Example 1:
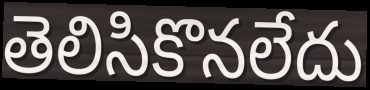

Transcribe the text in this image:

తెలిసికొనలేదు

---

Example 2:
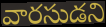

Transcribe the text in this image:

వారసుడని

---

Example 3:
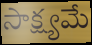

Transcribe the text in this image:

సాక్ష్యమే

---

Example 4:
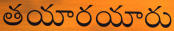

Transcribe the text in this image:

తయారయారు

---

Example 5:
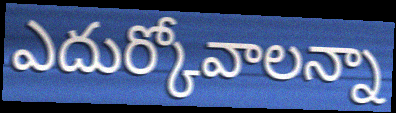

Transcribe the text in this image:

ఎదుర్కోవాలన్నా